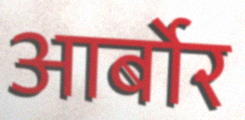
आर्बोर